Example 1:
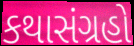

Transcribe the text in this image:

કથાસંગ્રહો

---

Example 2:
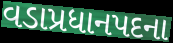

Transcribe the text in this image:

વડાપ્રધાનપદના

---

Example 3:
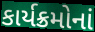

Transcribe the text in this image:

કાર્યક્રમોનાં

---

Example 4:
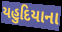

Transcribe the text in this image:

યહુદિયાના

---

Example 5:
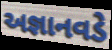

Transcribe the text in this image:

અજ્ઞાનવડે